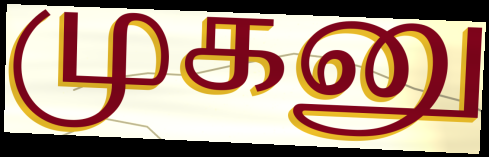
முகனு